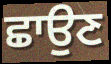
ਛਾਉਣ